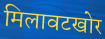
मिलावटखोर